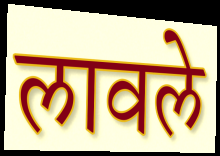
लावले